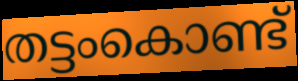
തട്ടംകൊണ്ട്